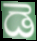
డె